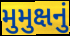
મુમુક્ષનું